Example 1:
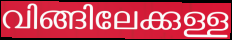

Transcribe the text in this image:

വിങ്ങിലേക്കുള്ള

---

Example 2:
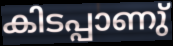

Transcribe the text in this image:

കിടപ്പാണു്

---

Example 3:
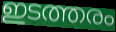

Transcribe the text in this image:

ഇടത്തരം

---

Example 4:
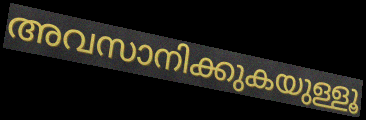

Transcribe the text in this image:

അവസാനിക്കുകയുള്ളൂ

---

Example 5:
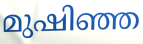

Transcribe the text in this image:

മുഷിഞ്ഞ